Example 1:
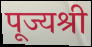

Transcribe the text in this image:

पूज्यश्री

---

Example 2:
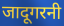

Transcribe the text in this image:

जादूगरनी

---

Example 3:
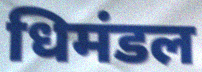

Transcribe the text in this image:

धिमंडल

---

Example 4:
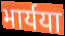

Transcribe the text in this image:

भार्यया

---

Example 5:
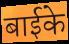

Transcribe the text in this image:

बाईके